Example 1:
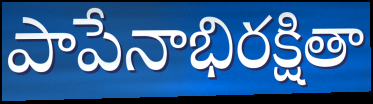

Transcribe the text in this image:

పాపేనాభిరక్షితా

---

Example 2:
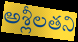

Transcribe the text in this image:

అశ్లీలతని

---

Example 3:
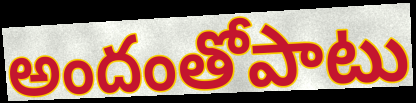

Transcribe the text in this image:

అందంతోపాటు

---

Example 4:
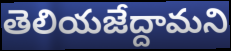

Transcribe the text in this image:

తెలియజేద్దామని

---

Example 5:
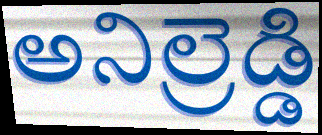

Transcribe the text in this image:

అనిల్రెడ్డి